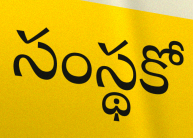
సంస్థకో